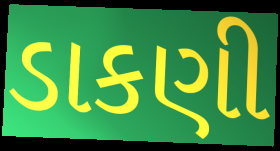
ડાકણી